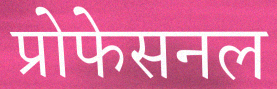
प्रोफेसनल